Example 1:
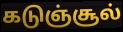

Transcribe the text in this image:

கடுஞ்சூல்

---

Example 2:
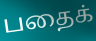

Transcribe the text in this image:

பதைக்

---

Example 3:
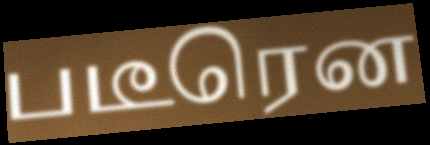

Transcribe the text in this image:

படீரென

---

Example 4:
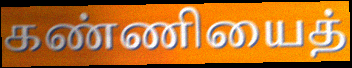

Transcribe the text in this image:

கண்ணியைத்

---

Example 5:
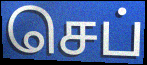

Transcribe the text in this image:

செப்